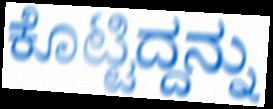
ಕೊಟ್ಟಿದ್ದನ್ನು